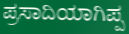
ಪ್ರಸಾದಿಯಾಗಿಪ್ಪ